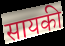
सायकी